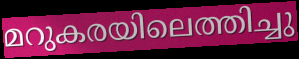
മറുകരയിലെത്തിച്ചു